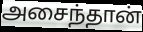
அசைந்தான்